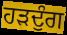
ਹੜਦੁੰਗ